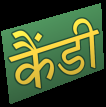
कैंडी